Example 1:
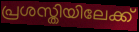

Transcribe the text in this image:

പ്രശസ്തിയിലേക്ക്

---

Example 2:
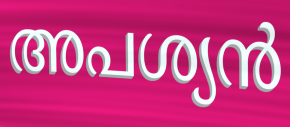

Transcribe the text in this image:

അപശ്യൻ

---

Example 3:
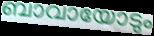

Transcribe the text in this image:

ബാവായോടും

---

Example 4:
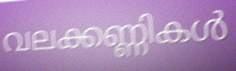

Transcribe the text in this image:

വലക്കണ്ണികൾ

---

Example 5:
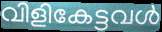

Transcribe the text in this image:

വിളികേട്ടവൾ